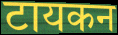
टायकन